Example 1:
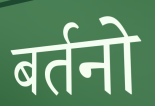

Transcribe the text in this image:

बर्तनो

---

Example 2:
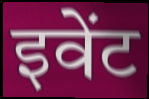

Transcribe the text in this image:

इवेंट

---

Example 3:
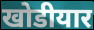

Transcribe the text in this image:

खोडीयार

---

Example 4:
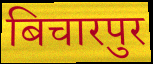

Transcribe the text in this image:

बिचारपुर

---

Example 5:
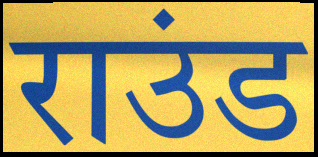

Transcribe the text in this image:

राउंड